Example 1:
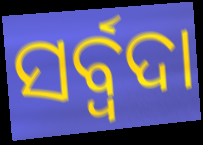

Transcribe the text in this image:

ସର୍ବ୍ବଦା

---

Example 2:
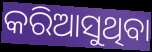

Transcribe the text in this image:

କରିଆସୁଥିବା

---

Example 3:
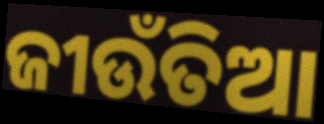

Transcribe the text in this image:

ଜୀଉଁତିଆ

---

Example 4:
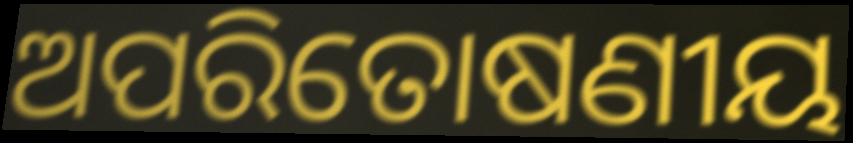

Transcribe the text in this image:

ଅପରିତୋଷଣୀୟ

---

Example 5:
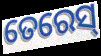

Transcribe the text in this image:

ତେରେସ୍